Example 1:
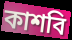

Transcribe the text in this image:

কাশবি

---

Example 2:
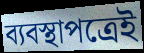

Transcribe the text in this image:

ব্যবস্থাপত্রেই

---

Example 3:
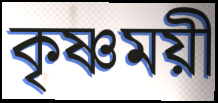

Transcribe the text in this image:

কৃষ্ণময়ী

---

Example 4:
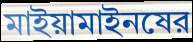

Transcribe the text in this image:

মাইয়ামাইনষের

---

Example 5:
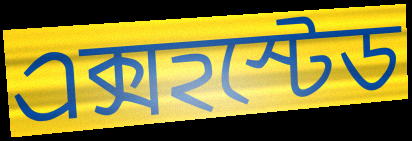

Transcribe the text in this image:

এক্সহস্টেড